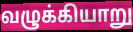
வழுக்கியாறு